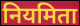
नियमिता